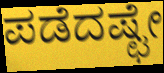
ಪಡೆದಷ್ಟೇ